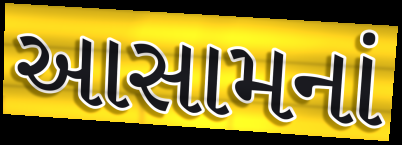
આસામનાં